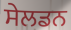
ਸੇਲਡਨ